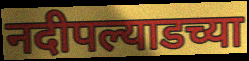
नदीपल्याडच्या